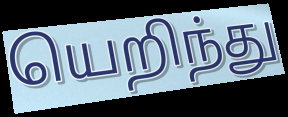
யெறிந்து